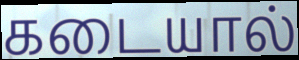
கடையால்